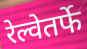
रेल्वेतर्फे